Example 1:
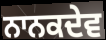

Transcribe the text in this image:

ਨਾਨਕਦੇਵ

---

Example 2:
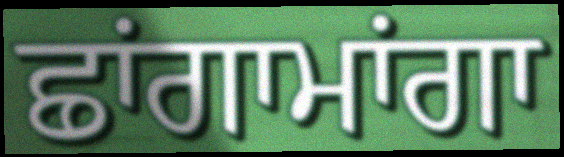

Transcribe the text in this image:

ਛਾਂਗਾਮਾਂਗਾ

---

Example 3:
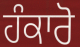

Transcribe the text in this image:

ਹੰਕਾਰੋ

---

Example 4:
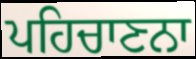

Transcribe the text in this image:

ਪਹਿਚਾਣਨਾ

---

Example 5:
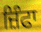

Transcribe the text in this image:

ਜ਼ਿੰਫਾ